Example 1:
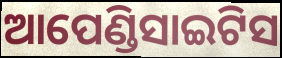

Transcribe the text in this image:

ଆପେଣ୍ଡିସାଇଟିସ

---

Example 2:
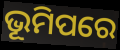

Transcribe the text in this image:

ଭୂମିପରେ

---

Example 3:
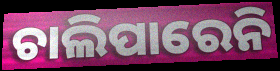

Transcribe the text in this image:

ଚାଲିପାରେନି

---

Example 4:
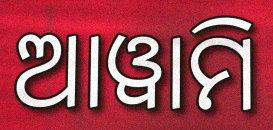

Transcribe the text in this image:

ଆୱାମି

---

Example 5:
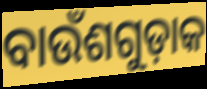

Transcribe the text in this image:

ବାଉଁଶଗୁଡ଼ାକ